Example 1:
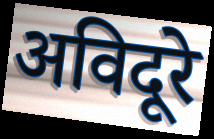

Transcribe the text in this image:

अविदूरे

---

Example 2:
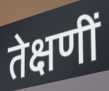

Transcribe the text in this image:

तेक्षणीं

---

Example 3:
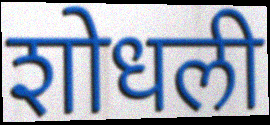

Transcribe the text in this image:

शोधली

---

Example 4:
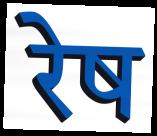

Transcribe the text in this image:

रेष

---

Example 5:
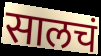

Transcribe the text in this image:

सालचं